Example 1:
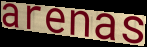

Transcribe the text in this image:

arenas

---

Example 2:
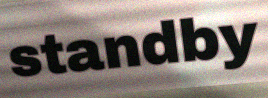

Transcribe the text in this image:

standby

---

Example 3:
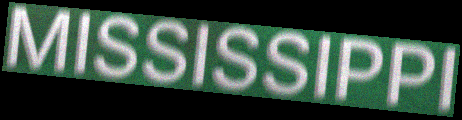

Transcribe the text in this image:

MISSISSIPPI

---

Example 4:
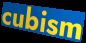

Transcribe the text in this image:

cubism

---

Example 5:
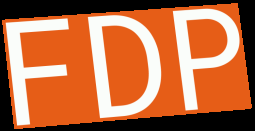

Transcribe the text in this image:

FDP